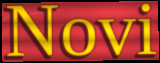
Novi